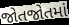
જોતજોતમાં